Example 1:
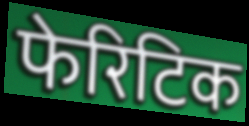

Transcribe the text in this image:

फेरिटिक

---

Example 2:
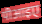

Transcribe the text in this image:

पीआइए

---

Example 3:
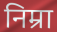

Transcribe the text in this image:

निम्रा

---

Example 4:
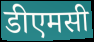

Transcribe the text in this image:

डीएमसी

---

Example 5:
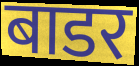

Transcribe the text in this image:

बाडर